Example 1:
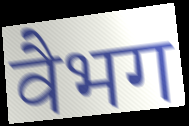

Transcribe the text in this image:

वैभग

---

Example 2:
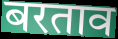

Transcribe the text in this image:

बरताव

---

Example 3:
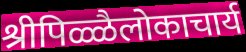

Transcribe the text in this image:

श्रीपिळ्ळैलोकाचार्य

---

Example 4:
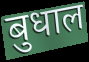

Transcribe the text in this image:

बुधाल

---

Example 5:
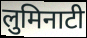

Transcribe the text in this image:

लुमिनाटी